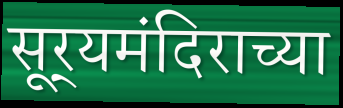
सूर्यमंदिराच्या